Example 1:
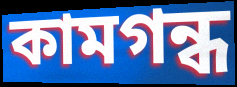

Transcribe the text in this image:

কামগন্ধ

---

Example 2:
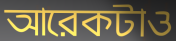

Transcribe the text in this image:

আরেকটাও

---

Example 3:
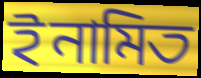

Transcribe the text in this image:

ইনামিত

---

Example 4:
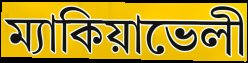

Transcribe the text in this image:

ম্যাকিয়াভেলী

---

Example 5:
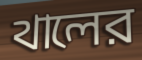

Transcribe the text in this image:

থালের